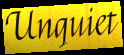
Unquiet